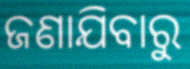
ଜଣାଯିବାରୁ